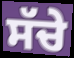
ਸੱਚੇ